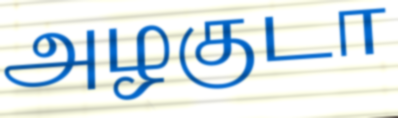
அழகுடா